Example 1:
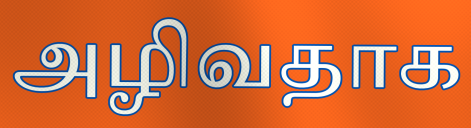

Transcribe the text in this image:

அழிவதாக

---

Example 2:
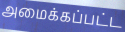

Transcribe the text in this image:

அமைக்கப்பட்ட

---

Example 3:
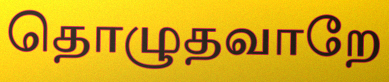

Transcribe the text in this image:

தொழுதவாறே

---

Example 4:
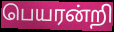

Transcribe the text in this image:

பெயரன்றி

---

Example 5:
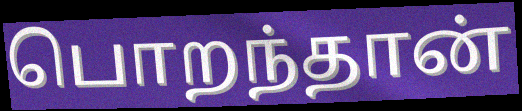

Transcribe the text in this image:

பொறந்தான்